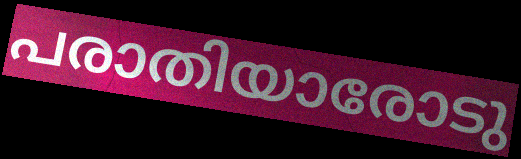
പരാതിയാരോടു